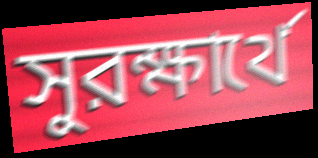
সুরক্ষার্থে